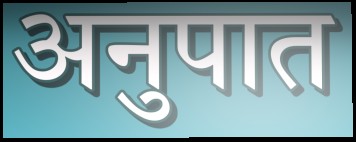
अनुपात